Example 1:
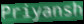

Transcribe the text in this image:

Priyansh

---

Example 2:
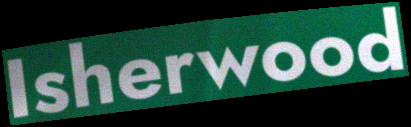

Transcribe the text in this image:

Isherwood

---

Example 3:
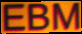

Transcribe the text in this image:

EBM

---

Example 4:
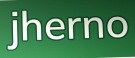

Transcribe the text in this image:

jherno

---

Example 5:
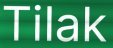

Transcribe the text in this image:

Tilak